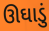
ઊઘાડું